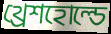
থ্রেশহোল্ডে